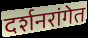
दर्शनरांगेत